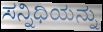
ಸನ್ನಿಧಿಯನ್ನು